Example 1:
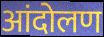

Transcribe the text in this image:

आंदोलण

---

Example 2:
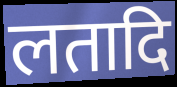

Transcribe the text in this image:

लतादि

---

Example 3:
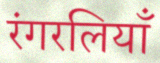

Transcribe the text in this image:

रंगरलियाँ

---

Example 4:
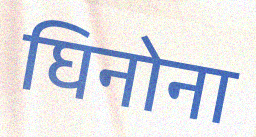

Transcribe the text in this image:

घिनोना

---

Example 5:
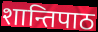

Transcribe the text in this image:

शान्तिपाठ